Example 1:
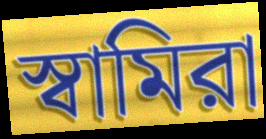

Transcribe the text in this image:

স্বামিরা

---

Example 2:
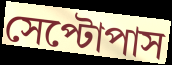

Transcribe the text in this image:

সেপ্টোপাস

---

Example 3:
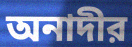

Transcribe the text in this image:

অনাদীর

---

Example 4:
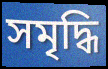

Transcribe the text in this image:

সমৃদ্ধি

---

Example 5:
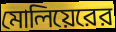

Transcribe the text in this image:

মোলিয়েরের